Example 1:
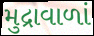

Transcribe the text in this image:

મુદ્રાવાળાં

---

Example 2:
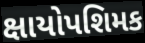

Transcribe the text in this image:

ક્ષાયોપશિમક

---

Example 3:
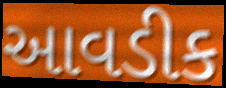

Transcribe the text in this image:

આવડીક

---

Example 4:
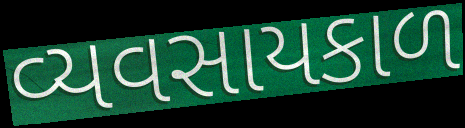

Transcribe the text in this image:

વ્યવસાયકાળ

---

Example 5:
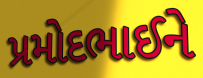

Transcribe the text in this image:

પ્રમોદભાઈને